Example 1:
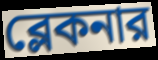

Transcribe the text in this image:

ব্লেকনার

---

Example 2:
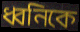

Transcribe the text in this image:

ধ্বনিকে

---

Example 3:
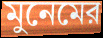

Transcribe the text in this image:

মুনেমের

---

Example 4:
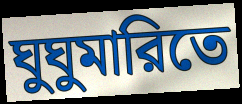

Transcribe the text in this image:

ঘুঘুমারিতে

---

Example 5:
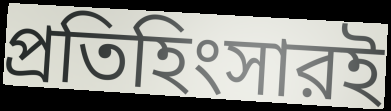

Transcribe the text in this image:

প্রতিহিংসারই